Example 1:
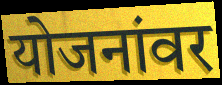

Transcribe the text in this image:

योजनांवर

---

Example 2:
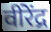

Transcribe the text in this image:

वीरेंद्र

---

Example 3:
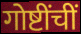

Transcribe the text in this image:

गोष्टींचीं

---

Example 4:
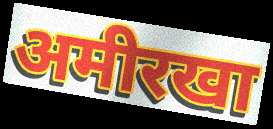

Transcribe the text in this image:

अमीरखा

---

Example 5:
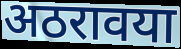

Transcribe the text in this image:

अठरावया